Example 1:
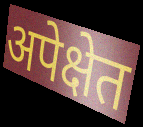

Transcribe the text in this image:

अपेक्षेत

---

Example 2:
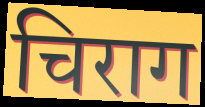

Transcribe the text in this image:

चिराग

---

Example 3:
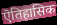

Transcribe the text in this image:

ऎतिहासिक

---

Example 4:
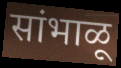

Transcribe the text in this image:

सांभाळू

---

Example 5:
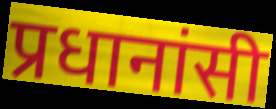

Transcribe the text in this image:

प्रधानांसी